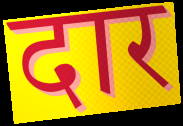
दार